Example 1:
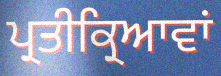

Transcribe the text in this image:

ਪ੍ਰਤੀਕ੍ਰਿਆਵਾਂ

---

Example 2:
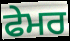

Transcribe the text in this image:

ਫੇਮਰ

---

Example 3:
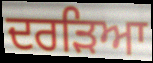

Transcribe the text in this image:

ਦਰੜਿਆ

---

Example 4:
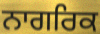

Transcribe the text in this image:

ਨਾਗਰਿਕ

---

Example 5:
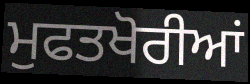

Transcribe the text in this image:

ਮੁਫਤਖੋਰੀਆਂ